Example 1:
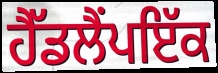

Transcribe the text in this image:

ਹੈੱਡਲੈਂਪਇੱਕ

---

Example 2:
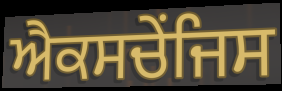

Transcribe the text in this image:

ਐਕਸਚੇਂਜਿਸ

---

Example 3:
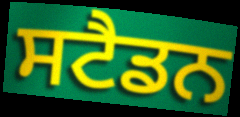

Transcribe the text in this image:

ਸਟੈਡਨ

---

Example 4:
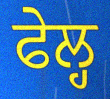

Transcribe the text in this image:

ਫੇਲ੍ਹ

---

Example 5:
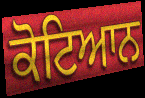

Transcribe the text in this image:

ਕੋਟਿਆਨ